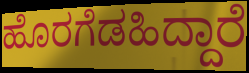
ಹೊರಗೆಡಹಿದ್ದಾರೆ